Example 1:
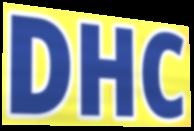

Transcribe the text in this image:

DHC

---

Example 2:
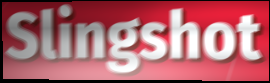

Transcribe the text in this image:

Slingshot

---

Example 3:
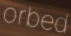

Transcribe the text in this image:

orbed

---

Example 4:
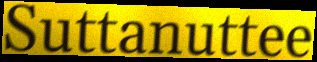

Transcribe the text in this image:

Suttanuttee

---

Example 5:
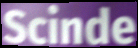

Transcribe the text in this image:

Scinde